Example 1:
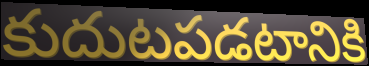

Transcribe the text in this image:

కుదుటపడటానికి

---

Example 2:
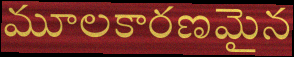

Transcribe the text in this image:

మూలకారణమైన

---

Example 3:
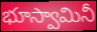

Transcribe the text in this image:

భూస్వామినీ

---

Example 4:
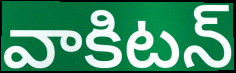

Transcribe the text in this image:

వాకిటన్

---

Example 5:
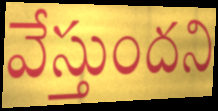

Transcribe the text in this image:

వేస్తుందని